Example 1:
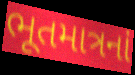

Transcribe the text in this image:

ભૂતમાત્રનાં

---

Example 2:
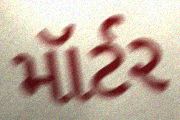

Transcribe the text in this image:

મૉર્ટર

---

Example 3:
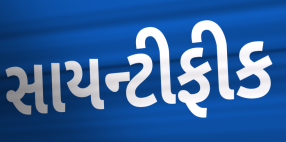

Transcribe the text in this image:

સાયન્ટીફીક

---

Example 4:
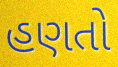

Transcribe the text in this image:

હણતો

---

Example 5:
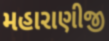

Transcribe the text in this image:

મહારાણીજી